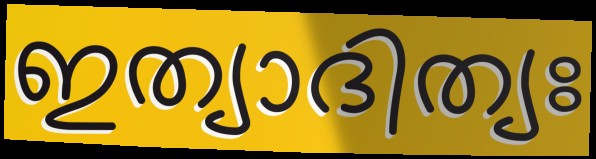
ഇത്യാദിത്യഃ